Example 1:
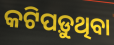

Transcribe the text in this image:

କଟିପଡ଼ୁଥିବା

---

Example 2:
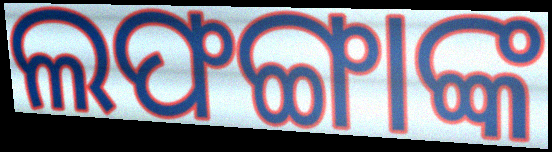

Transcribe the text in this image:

ଲଫଙ୍ଗାଙ୍କ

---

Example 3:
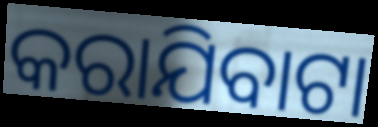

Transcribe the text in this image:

କରାଯିବାଟା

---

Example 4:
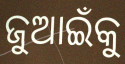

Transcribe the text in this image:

ଜୁଆଇଁକୁ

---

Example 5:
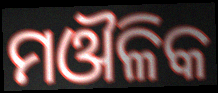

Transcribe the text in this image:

ମଔଳିକ